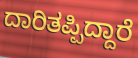
ದಾರಿತಪ್ಪಿದ್ದಾರೆ